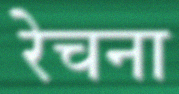
रेचना